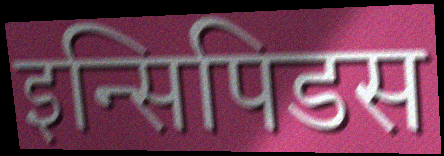
इन्सिपिडस